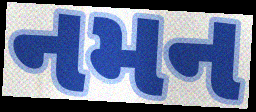
નમન